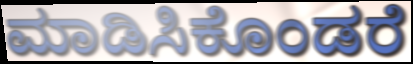
ಮಾಡಿಸಿಕೊಂಡರೆ